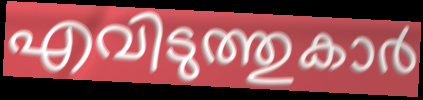
എവിടുത്തുകാർ